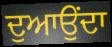
ਦੁਆਉਂਦਾ